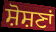
ਸ਼ੋਸ਼ਣਾਂ